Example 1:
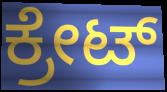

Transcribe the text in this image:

ಕ್ರೇಟ್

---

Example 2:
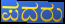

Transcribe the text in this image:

ಪದರು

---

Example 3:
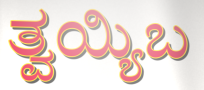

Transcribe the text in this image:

ತ್ವಯ್ಯಿಬ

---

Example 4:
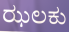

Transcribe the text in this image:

ಝಲಕು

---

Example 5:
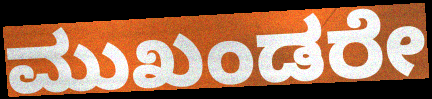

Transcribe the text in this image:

ಮುಖಂಡರೇ